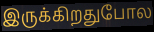
இருக்கிறதுபோல